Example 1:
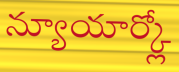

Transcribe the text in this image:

న్యూయార్క్లో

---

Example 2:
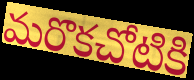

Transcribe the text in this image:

మరొకచోటికి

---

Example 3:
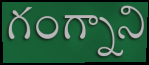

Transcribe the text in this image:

గంగ్నాని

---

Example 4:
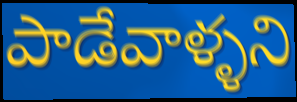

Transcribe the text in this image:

పాడేవాళ్ళని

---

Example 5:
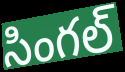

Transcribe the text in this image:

సింగల్